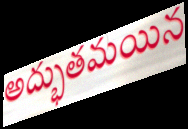
అద్భుతమయిన